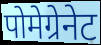
पोमेग्रेनेट